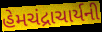
હેમચંદ્રાચાર્યની